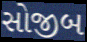
સોજીબ